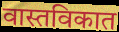
वास्तविकात